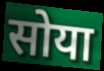
सोया